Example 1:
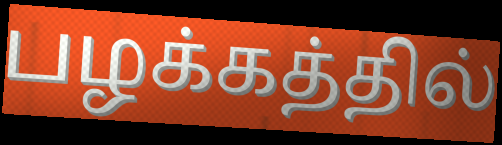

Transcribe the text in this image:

பழக்கத்தில்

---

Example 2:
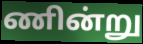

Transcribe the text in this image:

ணின்று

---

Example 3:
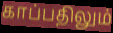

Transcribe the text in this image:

காப்பதிலும்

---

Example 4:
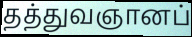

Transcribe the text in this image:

தத்துவஞானப்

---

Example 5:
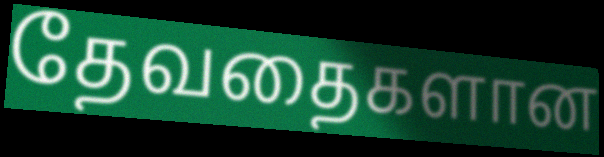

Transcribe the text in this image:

தேவதைகளான